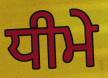
ਧੀਮੇ